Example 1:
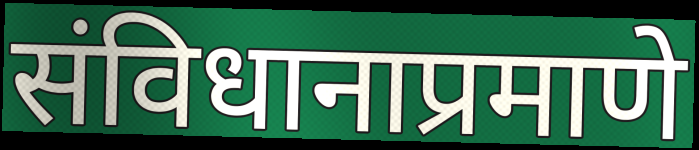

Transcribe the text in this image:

संविधानाप्रमाणे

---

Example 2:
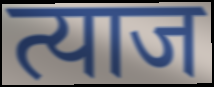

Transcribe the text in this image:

त्याज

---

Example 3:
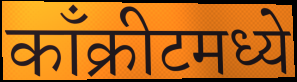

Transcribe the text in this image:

काँक्रीटमध्ये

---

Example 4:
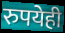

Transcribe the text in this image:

रुपयेही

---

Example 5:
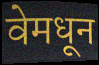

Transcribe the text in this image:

वेमधून